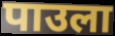
पाउला